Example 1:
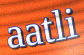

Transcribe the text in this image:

aatli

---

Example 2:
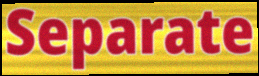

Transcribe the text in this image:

Separate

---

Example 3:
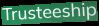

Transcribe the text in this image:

Trusteeship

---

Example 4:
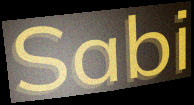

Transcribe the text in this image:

Sabi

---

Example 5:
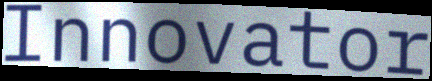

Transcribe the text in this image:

Innovator